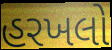
હરખલો